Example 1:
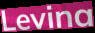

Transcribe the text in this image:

Levina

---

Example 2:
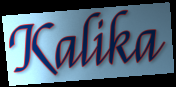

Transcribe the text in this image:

Kalika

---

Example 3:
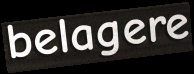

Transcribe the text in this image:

belagere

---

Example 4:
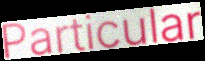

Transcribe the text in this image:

Particular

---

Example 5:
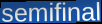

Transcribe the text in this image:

semifinal